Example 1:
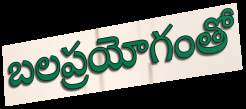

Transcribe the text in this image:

బలప్రయోగంతో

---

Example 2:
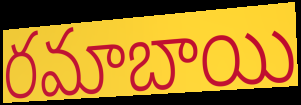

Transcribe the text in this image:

రమాబాయి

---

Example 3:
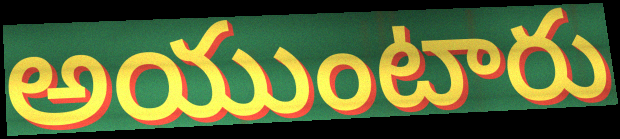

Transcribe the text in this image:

అయుంటారు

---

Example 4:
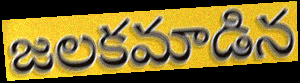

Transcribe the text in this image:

జలకమాడిన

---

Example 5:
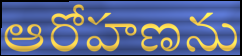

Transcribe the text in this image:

ఆరోహణను